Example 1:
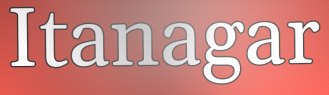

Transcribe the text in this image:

Itanagar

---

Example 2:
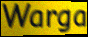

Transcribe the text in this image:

Warga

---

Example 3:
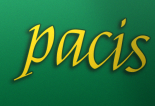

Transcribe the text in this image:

pacis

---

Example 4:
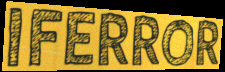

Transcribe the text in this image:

IFERROR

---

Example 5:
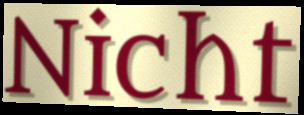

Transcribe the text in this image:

Nicht